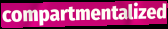
compartmentalized